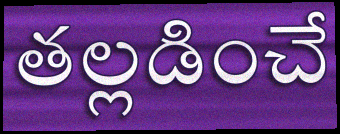
తల్లడించే